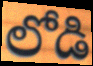
లోడి